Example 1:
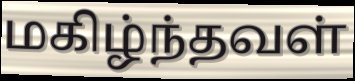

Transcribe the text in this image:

மகிழ்ந்தவள்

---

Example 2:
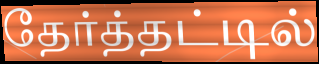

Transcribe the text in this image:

தேர்த்தட்டில்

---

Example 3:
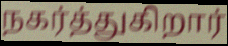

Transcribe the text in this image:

நகர்த்துகிறார்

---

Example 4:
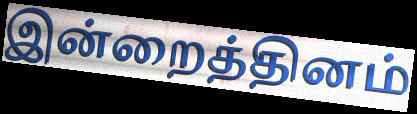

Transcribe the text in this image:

இன்றைத்தினம்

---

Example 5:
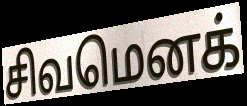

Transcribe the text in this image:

சிவமெனக்